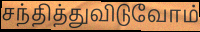
சந்தித்துவிடுவோம்